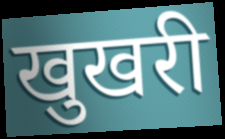
खुखरी